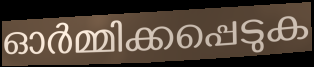
ഓർമ്മിക്കപ്പെടുക